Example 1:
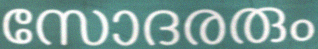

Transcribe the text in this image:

സോദരരും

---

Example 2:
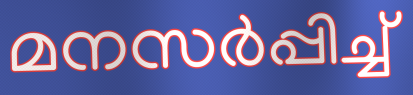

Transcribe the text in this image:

മനസർപ്പിച്ച്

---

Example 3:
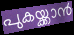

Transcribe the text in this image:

പുകയ്ക്കാൻ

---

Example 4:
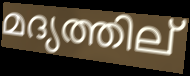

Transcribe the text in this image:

മദ്യത്തില്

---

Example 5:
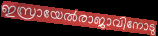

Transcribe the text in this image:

ഇസ്രായേൽരാജാവിനോടു